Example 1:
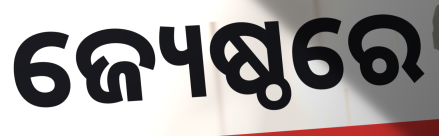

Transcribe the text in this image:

ଜ୍ୟେଷ୍ଠରେ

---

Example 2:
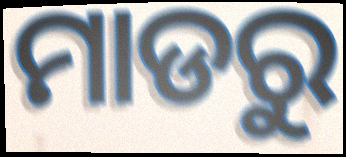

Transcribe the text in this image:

ମାଡରୁ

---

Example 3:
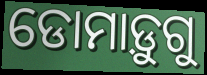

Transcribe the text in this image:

ଡୋମାଡ଼ୁଗୁ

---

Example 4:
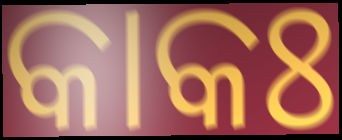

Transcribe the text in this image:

କାକଃ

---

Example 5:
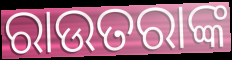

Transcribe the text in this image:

ରାଉତରାଙ୍କ